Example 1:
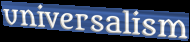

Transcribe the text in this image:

universalism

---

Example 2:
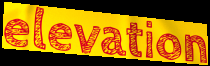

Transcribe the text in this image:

elevation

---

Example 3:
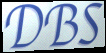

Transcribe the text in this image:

DBS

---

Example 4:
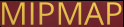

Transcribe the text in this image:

MIPMAP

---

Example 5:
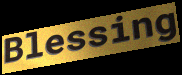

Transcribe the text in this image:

Blessing